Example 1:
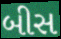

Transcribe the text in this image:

બીસ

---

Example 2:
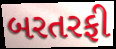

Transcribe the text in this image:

બરતરફી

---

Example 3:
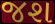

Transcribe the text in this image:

જશ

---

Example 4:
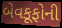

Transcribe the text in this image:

બેવકૂફોની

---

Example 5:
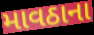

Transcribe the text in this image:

માવઠાના